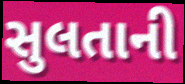
સુલતાની